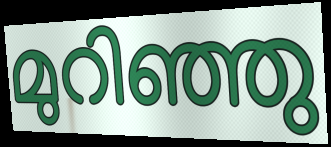
മുറിഞ്ഞു